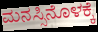
ಮನಸ್ಸಿನೊಳಕ್ಕೆ